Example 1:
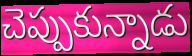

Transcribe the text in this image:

చెప్పుకున్నాడు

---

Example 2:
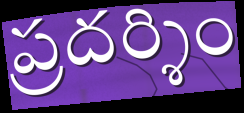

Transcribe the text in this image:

ప్రదర్శిం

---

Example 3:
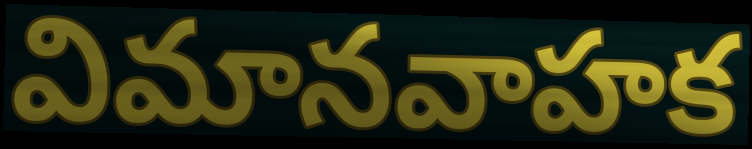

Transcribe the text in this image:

విమానవాహక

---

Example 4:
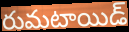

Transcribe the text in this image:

రుమటాయిడ్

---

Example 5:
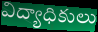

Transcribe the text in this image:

విద్యాధికులు